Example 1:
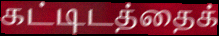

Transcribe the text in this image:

கட்டிடத்தைக்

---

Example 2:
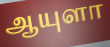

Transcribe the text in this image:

ஆயுளா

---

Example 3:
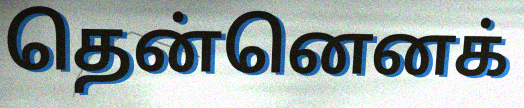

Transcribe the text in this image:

தென்னெனக்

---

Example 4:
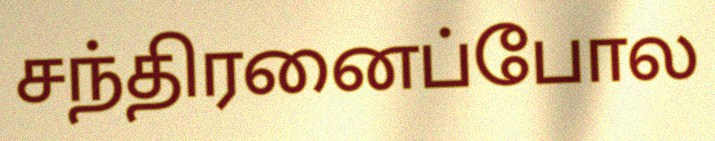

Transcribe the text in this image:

சந்திரனைப்போல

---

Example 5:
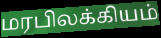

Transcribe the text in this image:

மரபிலக்கியம்